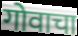
गोवाचा